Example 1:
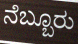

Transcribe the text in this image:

ನೆಬ್ಬೂರು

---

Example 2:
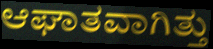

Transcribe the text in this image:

ಆಘಾತವಾಗಿತ್ತು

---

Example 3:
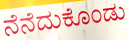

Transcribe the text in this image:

ನೆನೆದುಕೊಂಡು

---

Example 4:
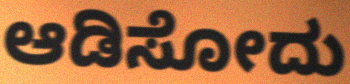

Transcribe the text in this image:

ಆಡಿಸೋದು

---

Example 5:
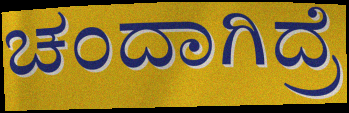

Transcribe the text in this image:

ಚಂದಾಗಿದ್ರೆ